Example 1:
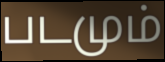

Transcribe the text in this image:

படமும்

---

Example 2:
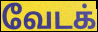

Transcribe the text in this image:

வேடக்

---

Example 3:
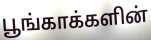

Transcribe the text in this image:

பூங்காக்களின்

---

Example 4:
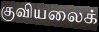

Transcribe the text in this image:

குவியலைக்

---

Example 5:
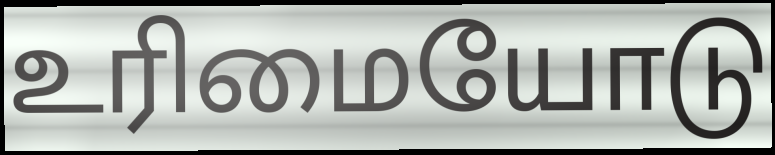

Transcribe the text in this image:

உரிமையோடு